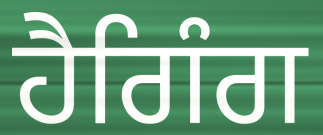
ਹੈਗਿੰਗ